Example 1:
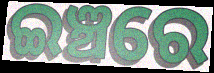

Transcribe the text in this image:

ଇଞ୍ଚରେ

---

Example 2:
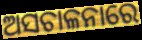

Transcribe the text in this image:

ଅସଚାଳନାରେ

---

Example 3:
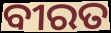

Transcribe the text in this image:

ବୀରତ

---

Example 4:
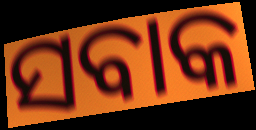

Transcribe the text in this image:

ସବାକ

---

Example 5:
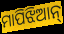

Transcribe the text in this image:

ମାପିଝିଆନ୍